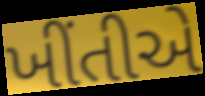
ખીંતીએ